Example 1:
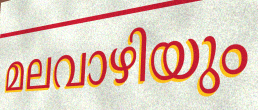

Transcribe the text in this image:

മലവാഴിയും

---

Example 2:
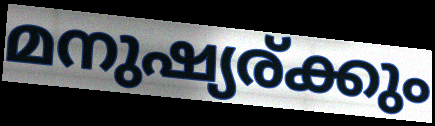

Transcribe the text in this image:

മനുഷ്യര്ക്കും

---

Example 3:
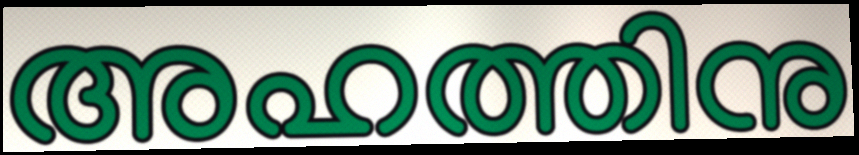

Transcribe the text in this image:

അഹത്തിനു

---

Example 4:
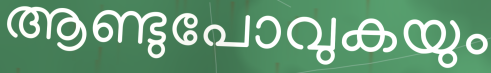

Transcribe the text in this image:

ആണ്ടുപോവുകയും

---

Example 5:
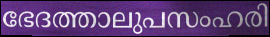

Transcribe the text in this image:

ഭേദത്താലുപസംഹരി